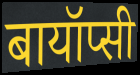
बायॉप्सी